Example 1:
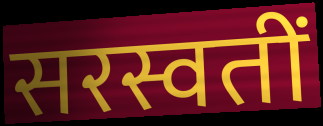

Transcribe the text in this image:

सरस्वतीं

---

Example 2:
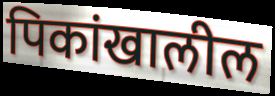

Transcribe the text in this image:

पिकांखालील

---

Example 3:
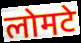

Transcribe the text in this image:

लोमटे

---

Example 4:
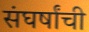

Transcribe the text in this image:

संघर्षांची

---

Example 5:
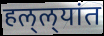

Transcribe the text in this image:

हल्ल्यांत